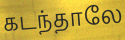
கடந்தாலே